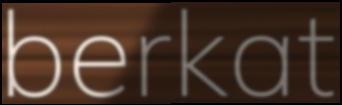
berkat